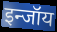
इन्जॉय